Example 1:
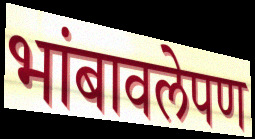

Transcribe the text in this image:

भांबावलेपण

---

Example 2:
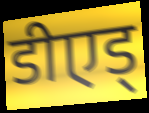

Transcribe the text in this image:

डीएड्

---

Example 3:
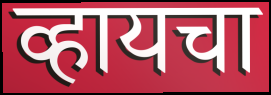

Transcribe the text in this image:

व्हायचा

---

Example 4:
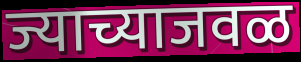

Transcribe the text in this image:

ज्याच्याजवळ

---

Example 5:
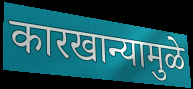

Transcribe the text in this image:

कारखान्यामुळे